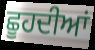
ਛੂਹਦੀਆਂ